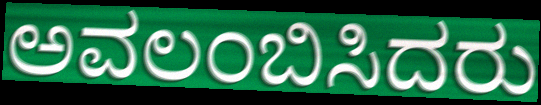
ಅವಲಂಬಿಸಿದರು